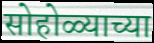
सोहोळ्याच्या